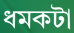
ধমকটা